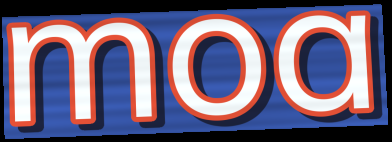
moa